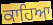
ਕਾਹਿਆ